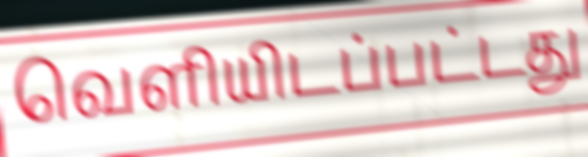
வெளியிடப்பட்டது